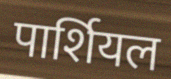
पार्शियल